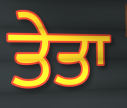
ਤੇਤਾ